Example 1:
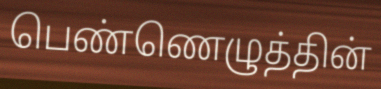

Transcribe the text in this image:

பெண்ணெழுத்தின்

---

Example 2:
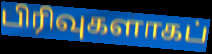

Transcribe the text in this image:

பிரிவுகளாகப்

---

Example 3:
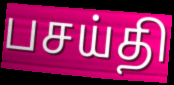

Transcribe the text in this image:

பசய்தி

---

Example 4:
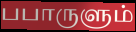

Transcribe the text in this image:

பபாருளும்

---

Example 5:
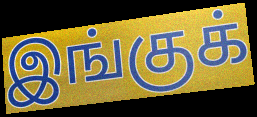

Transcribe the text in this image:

இங்குக்